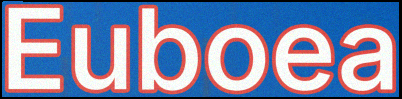
Euboea